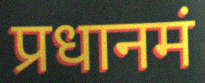
प्रधानमं